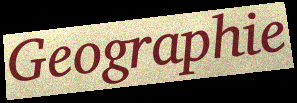
Geographie